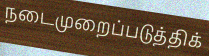
நடைமுறைப்படுத்திக்